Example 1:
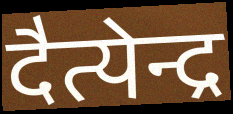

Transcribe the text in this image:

दैत्येन्द्र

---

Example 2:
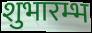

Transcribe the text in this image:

शुभारम्भ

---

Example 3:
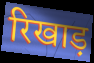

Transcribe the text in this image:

रिखाड़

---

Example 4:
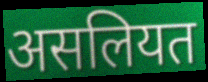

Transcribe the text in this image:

असलियत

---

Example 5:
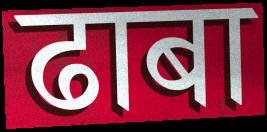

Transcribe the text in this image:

ढाबा